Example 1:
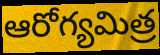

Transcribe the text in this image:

ఆరోగ్యమిత్ర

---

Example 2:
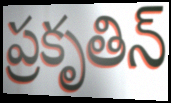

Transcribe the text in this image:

ప్రకృతిన్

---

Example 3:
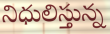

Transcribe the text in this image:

నిధులిస్తున్న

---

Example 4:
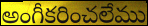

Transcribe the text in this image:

అంగీకరించలేము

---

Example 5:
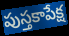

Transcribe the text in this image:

పుస్తకాపేక్ష